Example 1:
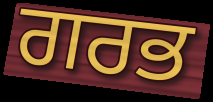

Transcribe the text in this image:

ਗਰਭ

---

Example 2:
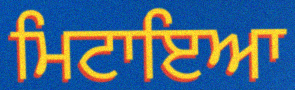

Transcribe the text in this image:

ਮਿਟਾਇਆ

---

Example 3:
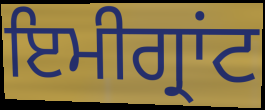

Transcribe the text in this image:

ਇਮੀਗ੍ਰਾਂਟ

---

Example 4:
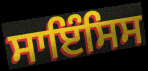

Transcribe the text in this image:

ਸਾਇੰਸਿਸ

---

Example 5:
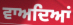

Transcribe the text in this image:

ਵਾਅਦਿਆਂ